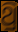
ଥ୍ରି